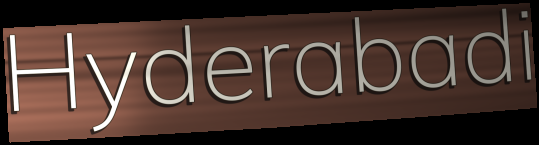
Hyderabadi